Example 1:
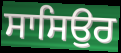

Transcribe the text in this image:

ਸਾਸਿਉਰ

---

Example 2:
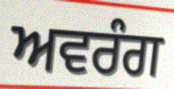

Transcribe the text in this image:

ਅਵਰੰਗ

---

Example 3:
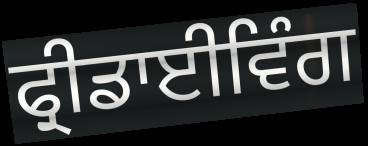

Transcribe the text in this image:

ਫ੍ਰੀਡਾਈਵਿੰਗ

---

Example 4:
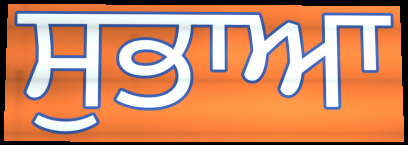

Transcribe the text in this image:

ਸੁਭਾਆ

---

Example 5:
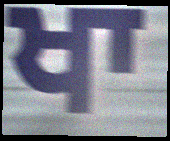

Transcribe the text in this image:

ਖਾ